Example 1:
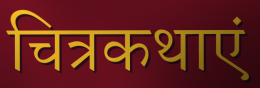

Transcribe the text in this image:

चित्रकथाएं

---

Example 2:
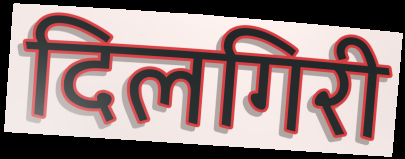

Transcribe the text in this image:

दिलगिरी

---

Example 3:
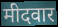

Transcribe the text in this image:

मीदवार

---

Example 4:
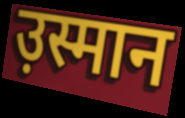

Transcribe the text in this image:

उ़स्मान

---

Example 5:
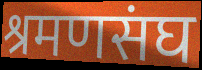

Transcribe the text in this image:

श्रमणसंघ